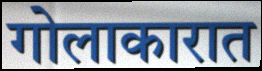
गोलाकारात